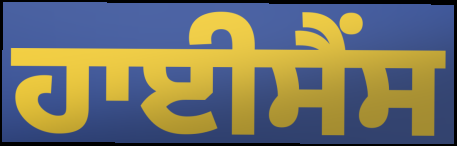
ਹਾਈਸੈਂਸ